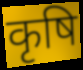
कृषि